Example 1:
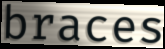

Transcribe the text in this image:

braces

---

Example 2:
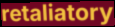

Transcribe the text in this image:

retaliatory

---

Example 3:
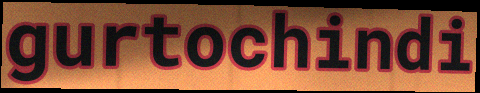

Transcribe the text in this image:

gurtochindi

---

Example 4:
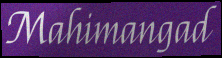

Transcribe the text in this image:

Mahimangad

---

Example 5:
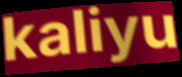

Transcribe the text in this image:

kaliyu